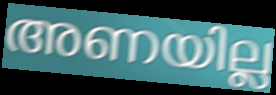
അണയില്ല